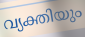
വ്യക്തിയും